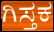
ಗಿಸ್ತಕ